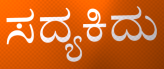
ಸದ್ಯಕಿದು